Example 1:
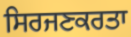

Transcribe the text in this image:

ਸਿਰਜਣਕਰਤਾ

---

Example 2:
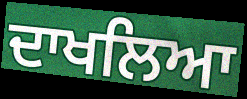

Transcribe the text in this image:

ਦਾਖਲਿਆ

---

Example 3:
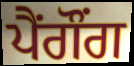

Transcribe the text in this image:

ਪੈਂਗੌਂਗ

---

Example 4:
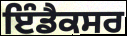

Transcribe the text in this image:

ਇੰਡੈਕਸਰ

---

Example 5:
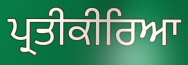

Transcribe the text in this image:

ਪ੍ਰਤੀਕੀਰਿਆ